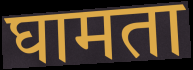
घामता